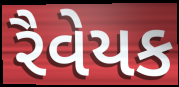
રૈવેયક